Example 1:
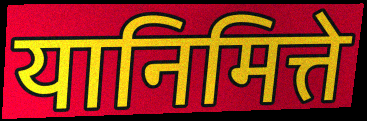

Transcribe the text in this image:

यानिमित्ते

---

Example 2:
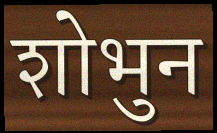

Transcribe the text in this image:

शोभुन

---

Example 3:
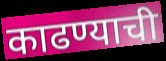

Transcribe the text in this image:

काढण्याची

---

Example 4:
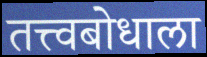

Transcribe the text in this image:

तत्त्वबोधाला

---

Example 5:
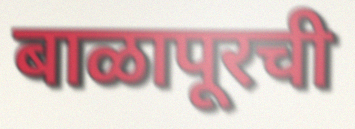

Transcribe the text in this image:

बाळापूरची